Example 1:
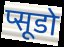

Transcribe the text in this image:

प्सूडो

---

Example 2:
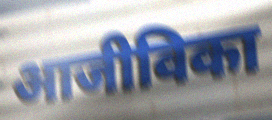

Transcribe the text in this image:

आजीविका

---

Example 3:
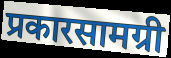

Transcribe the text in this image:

प्रकारसामग्री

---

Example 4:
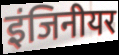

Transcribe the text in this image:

इंजिनीयर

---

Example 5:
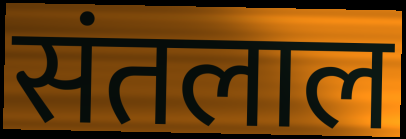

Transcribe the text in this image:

संतलाल